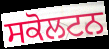
ਸਕੋਲਟਨ